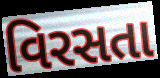
વિરસતા